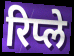
रिप्ले